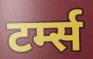
टर्म्स